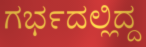
ಗರ್ಭದಲ್ಲಿದ್ದ